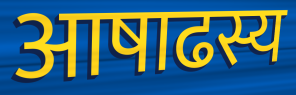
आषाढस्य